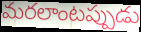
మరలాంటప్పుడు